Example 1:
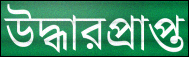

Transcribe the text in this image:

উদ্ধারপ্রাপ্ত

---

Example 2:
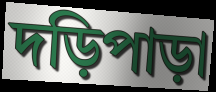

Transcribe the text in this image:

দড়িপাড়া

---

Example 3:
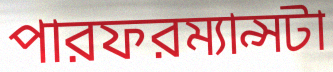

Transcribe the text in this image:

পারফরম্যান্সটা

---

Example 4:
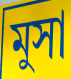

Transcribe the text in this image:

মুসা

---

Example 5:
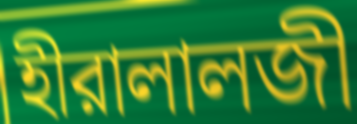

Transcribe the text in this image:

হীরালালজী